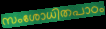
സംശോധിതപാഠം